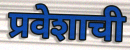
प्रवेशाची